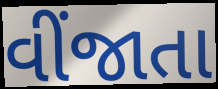
વીંજાતા